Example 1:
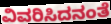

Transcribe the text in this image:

ವಿವರಿಸಿದನಂತೆ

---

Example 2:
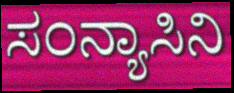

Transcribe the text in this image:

ಸಂನ್ಯಾಸಿನಿ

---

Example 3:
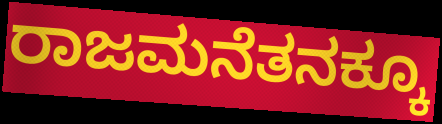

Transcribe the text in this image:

ರಾಜಮನೆತನಕ್ಕೂ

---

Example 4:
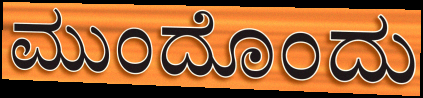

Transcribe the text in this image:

ಮುಂದೊಂದು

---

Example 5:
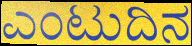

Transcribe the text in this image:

ಎಂಟುದಿನ